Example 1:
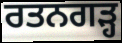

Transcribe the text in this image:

ਰਤਨਗੜ੍ਹ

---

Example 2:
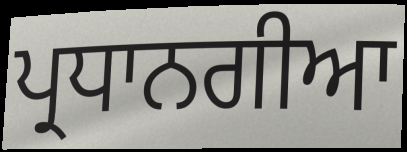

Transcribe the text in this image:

ਪ੍ਰਧਾਨਗੀਆ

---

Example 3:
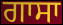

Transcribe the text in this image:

ਗਾਸਾ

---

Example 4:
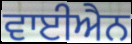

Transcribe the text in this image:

ਵਾਈਐਨ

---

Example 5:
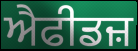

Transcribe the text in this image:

ਐਫੀਡਜ਼